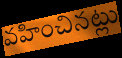
వహించినట్లు